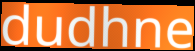
dudhne